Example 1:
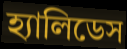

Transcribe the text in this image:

হ্যালিডেস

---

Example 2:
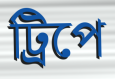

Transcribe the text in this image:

ট্রিপে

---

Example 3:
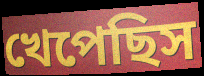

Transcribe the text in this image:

খেপেছিস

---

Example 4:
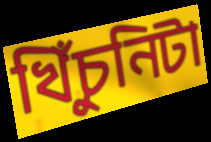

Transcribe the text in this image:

খিঁচুনিটা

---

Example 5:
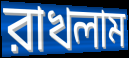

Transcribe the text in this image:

রাখলাম